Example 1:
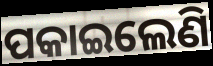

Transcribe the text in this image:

ପକାଇଲେଣି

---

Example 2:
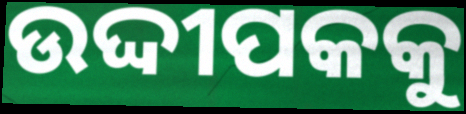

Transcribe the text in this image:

ଉଦ୍ଦୀପକକୁ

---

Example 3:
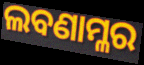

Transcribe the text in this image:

ଲବଣାମ୍ଳର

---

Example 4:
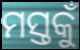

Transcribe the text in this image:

ମସ୍ତକୁଁ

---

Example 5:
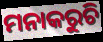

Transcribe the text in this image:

ମନାକରୁଚି